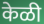
केळी